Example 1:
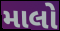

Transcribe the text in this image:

માલો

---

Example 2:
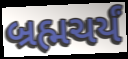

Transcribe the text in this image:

બ્રહ્મચર્યં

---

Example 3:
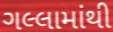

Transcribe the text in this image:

ગલ્લામાંથી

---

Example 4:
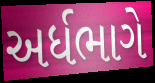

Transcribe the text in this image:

અર્ધભાગે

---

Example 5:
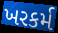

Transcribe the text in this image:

ખરકર્મ